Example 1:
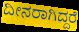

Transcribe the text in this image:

ದೀನರಾಗಿದ್ದರೆ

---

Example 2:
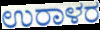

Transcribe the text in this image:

ಉರಾಳರ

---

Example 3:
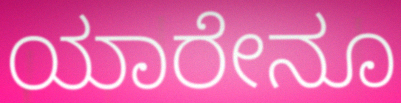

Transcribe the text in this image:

ಯಾರೇನೂ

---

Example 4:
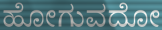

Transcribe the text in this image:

ಹೋಗುವದೋ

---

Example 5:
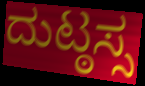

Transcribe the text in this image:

ದುಟ್ಠಸ್ಸ